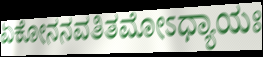
ಏಕೋನನವತಿತಮೋಽಧ್ಯಾಯಃ